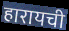
हारायची